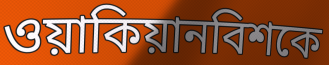
ওয়াকিয়ানবিশকে